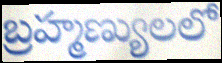
బ్రహ్మణ్యులలో